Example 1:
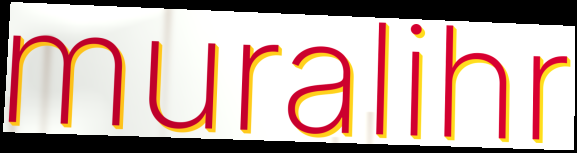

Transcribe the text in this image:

muralihr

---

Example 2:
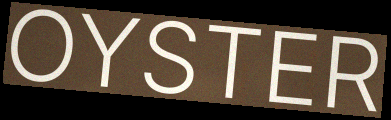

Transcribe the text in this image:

OYSTER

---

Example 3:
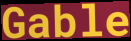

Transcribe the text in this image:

Gable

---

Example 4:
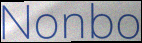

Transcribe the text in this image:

Nonbo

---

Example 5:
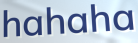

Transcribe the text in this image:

hahaha